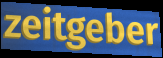
zeitgeber